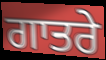
ਗਾਤਰੇ